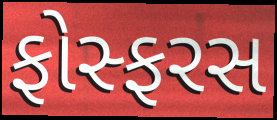
ફોસ્ફરસ